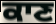
ਕਾਣ